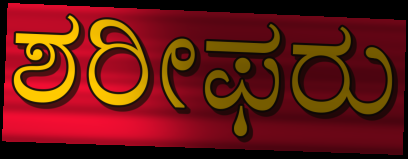
ಶರೀಫರು